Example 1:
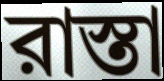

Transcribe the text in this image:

রাস্তা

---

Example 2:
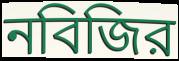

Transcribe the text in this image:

নবিজির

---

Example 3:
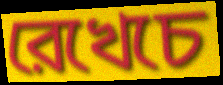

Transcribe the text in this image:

রেখেচে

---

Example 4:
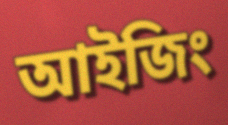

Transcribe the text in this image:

আইজিং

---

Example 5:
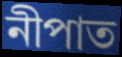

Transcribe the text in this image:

নীপাত